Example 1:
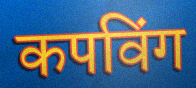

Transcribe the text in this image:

कपविंग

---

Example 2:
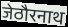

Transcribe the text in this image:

जेठौरनाथ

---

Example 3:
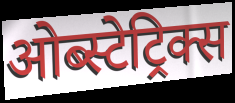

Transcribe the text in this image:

ओब्स्टेट्रिक्स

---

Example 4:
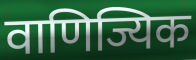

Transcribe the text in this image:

वाणिज्यिक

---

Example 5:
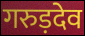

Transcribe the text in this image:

गरुड़देव